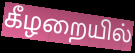
கீழறையில்